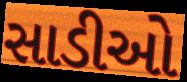
સાડીઓ